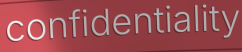
confidentiality